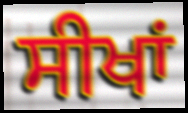
ਸੀਖਾਂ